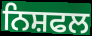
ਨਿਸ਼ਫਲ